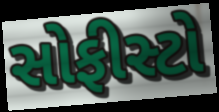
સોફીસ્ટો